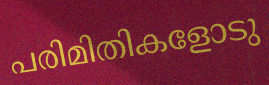
പരിമിതികളോടു